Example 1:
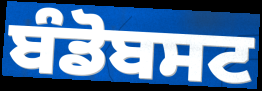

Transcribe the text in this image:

ਬੰਡੋਬਸਟ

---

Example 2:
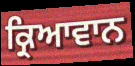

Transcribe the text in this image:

ਕ੍ਰਿਆਵਾਨ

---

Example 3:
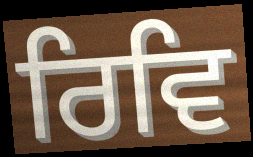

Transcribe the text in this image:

ਰਿਵਿ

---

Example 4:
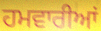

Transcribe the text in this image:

ਹਮਵਾਰੀਆਂ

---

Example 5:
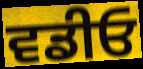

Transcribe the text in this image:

ਵਡੀਓ